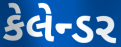
કેલેન્ડર